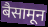
बैसामून